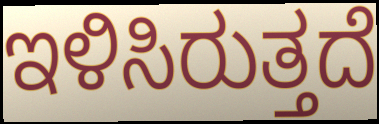
ಇಳಿಸಿರುತ್ತದೆ